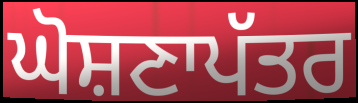
ਘੋਸ਼ਣਾਪੱਤਰ